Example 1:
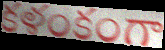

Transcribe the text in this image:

కళంకంగా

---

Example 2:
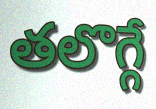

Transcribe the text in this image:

తలొగ్గే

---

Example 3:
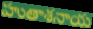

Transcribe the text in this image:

హుతాశనాయ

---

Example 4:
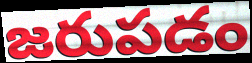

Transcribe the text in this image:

జరుపడం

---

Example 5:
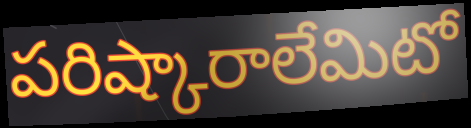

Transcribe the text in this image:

పరిష్కారాలేమిటో